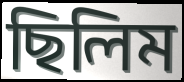
ছিলিম